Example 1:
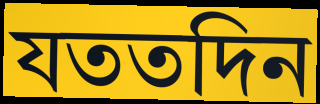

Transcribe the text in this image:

যততদিন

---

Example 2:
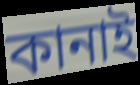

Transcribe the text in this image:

কানাই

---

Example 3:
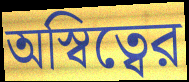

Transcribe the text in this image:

অস্বিত্বের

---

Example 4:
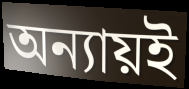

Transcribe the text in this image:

অন্যায়ই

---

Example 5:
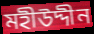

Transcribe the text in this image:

মহীউদ্দীন